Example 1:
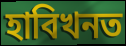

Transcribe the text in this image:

হাবিখনত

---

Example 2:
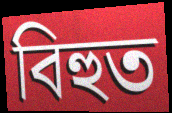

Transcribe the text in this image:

বিহুত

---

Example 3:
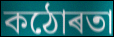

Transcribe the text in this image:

কঠোৰতা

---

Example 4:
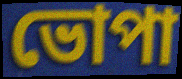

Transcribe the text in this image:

ভোপা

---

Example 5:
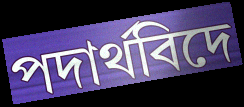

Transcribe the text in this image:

পদাৰ্থবিদে